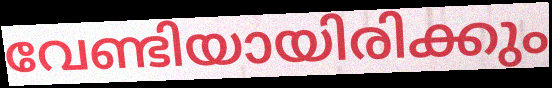
വേണ്ടിയായിരിക്കും